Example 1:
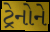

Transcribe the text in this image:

ટ્રેનોને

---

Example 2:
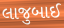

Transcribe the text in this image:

લાજુબાઈ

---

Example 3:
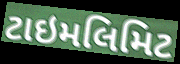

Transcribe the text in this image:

ટાઇમલિમિટ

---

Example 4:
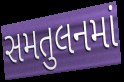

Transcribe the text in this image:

સમતુલનમાં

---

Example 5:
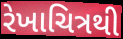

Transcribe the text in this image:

રેખાચિત્રથી